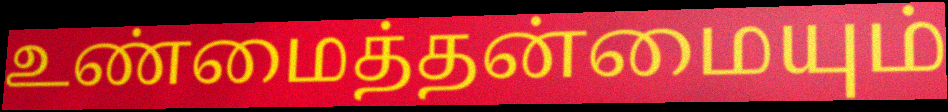
உண்மைத்தன்மையும்